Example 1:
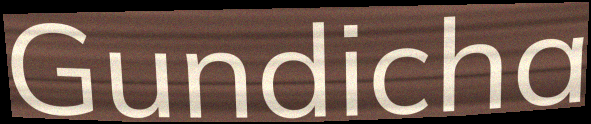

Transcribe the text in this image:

Gundicha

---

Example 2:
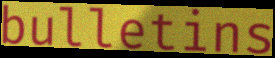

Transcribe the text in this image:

bulletins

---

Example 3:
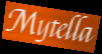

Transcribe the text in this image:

Mytella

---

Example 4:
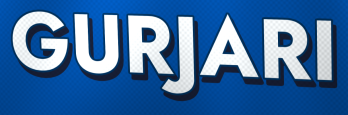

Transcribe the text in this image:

GURJARI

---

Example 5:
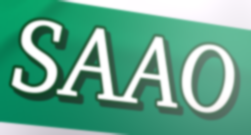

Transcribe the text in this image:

SAAO